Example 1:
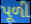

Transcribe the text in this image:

પૂળી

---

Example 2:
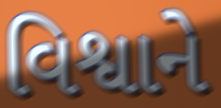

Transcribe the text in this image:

વિશ્વાને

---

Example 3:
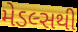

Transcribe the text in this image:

મેડલ્સથી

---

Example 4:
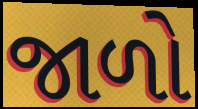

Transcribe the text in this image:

જાળો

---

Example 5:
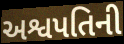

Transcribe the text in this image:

અશ્વપતિની